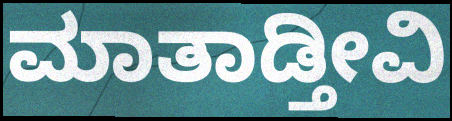
ಮಾತಾಡ್ತೀವಿ